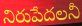
నిరుపేదలనీ